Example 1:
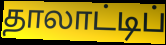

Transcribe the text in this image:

தாலாட்டிப்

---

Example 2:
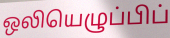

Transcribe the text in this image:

ஒலியெழுப்பிப்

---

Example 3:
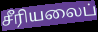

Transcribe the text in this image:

சீரியலைப்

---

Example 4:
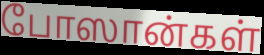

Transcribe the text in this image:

போஸான்கள்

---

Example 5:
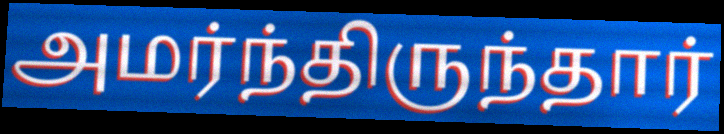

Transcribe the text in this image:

அமர்ந்திருந்தார்